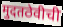
मुदतठेवीची